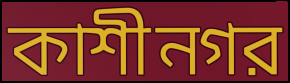
কাশীনগর